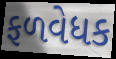
ફળવેધક